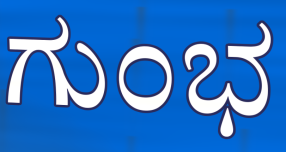
ಗುಂಭ